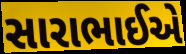
સારાભાઈએ